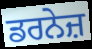
ਡਰਨੇਜ਼